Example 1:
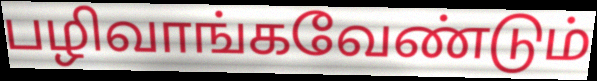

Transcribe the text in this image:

பழிவாங்கவேண்டும்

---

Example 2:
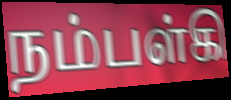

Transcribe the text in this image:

நம்பள்கி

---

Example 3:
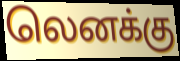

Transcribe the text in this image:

லெனக்கு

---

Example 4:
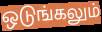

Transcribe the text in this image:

ஒடுங்கலும்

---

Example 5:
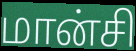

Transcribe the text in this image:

மான்சி